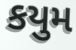
કયુમ